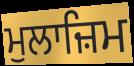
ਮੁਲਾਜ਼ਿਮ